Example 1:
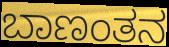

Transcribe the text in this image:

ಬಾಣಂತನ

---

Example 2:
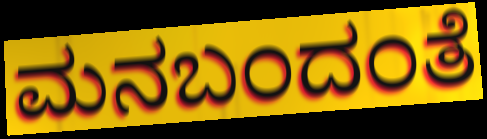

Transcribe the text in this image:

ಮನಬಂದಂತೆ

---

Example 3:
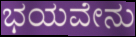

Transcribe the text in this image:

ಭಯವೇನು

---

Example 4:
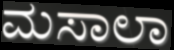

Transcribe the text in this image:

ಮಸಾಲಾ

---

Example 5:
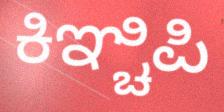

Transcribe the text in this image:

ಕಿಞ್ಚಿಪಿ